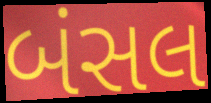
બંસલ